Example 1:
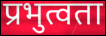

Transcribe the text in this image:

प्रभुत्वता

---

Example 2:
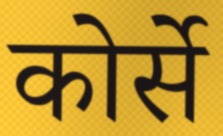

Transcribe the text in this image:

कोर्से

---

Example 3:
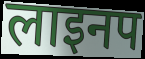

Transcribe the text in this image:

लाइनप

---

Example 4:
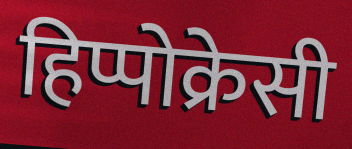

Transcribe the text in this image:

हिप्पोक्रेसी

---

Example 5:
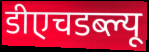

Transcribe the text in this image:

डीएचडब्ल्यू